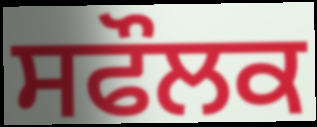
ਸਫੌਲਕ